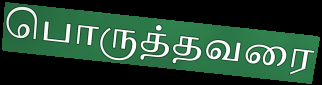
பொருத்தவரை